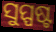
ସୁପ୍ପଷ୍ଟ